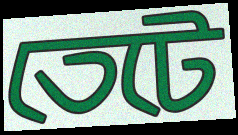
তেটে